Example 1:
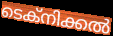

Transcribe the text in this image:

ടെക്നിക്കൽ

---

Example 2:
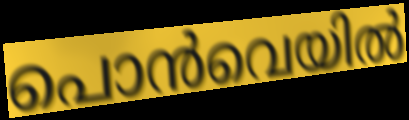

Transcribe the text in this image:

പൊൻവെയിൽ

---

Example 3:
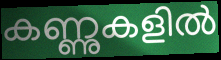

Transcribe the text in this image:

കണ്ണുകളിൽ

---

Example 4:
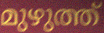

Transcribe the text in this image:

മുഴുത്ത്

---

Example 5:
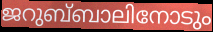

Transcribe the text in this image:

ജറുബ്‌ബാലിനോടും